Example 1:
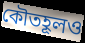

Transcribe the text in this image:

কৌতহূলও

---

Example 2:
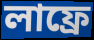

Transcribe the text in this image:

লাফ্রে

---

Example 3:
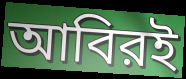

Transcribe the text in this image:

আবিরই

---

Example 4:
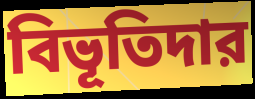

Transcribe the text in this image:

বিভূতিদার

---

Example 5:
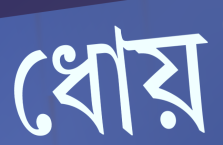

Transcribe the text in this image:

ধোয়